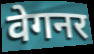
वेगनर